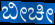
ಬೀಚೀ